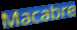
Macabre